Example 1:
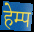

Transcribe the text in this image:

हेम्प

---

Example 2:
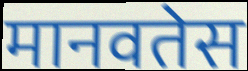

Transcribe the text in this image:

मानवतेस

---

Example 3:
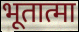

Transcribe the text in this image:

भूतात्मा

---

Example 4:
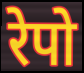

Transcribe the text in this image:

रेपो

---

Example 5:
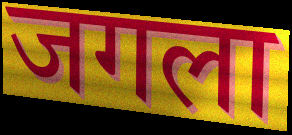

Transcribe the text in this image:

जगला